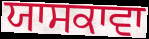
ਯਾਸਕਾਵਾ